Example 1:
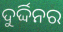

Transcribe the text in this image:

ଦୁର୍ଦ୍ଦିନର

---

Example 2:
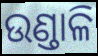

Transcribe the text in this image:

ଉଣ୍ଡାଳି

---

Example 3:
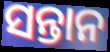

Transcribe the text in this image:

ସନ୍ତାନ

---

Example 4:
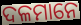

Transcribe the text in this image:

ଦଳମାନେ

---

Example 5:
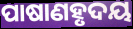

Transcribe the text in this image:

ପାଷାଣହୃଦୟ